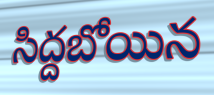
సిద్దబోయిన